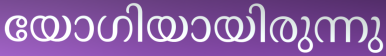
യോഗിയായിരുന്നു